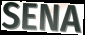
SENA